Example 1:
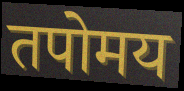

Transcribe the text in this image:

तपोमय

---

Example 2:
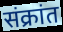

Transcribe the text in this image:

संक्रांत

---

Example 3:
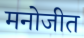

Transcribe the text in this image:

मनोजीत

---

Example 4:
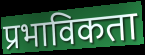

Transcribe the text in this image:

प्रभाविकता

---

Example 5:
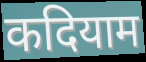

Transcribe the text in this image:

कदियाम